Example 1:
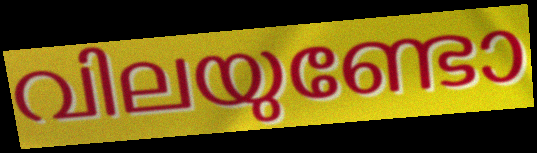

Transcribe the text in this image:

വിലയുണ്ടോ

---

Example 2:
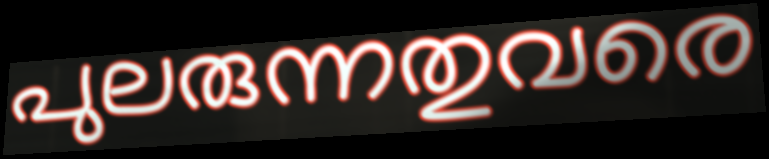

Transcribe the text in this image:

പുലരുന്നതുവരെ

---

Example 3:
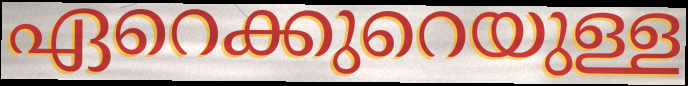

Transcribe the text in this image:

ഏറെക്കുറെയുള്ള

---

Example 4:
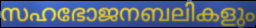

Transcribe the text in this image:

സഹഭോജനബലികളും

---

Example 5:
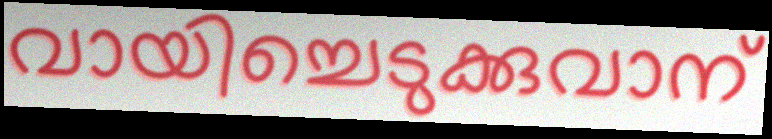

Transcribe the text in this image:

വായിച്ചെടുക്കുവാന്